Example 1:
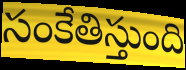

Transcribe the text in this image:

సంకేతిస్తుంది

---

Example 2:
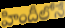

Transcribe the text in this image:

హిందీలోనే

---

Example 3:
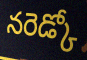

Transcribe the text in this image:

నరెడ్కో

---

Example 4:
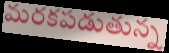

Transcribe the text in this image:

మరకపడుతున్న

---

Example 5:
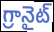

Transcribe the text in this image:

గ్రానైట్